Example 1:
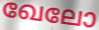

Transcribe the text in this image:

ഖേലോ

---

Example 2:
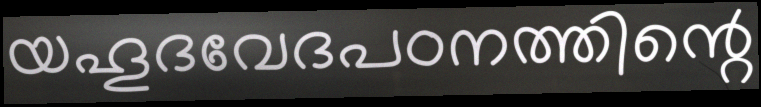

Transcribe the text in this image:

യഹൂദവേദപഠനത്തിന്റെ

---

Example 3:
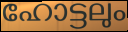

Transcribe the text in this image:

ഹോട്ടലും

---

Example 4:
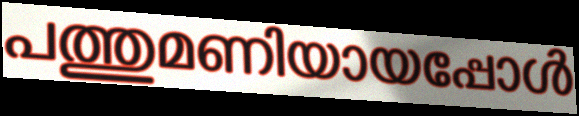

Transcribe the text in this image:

പത്തുമണിയായപ്പോൾ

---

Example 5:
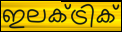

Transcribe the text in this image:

ഇലക്ട്രിക്